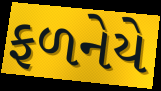
ફળનેયે